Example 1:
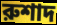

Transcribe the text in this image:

রুশাদ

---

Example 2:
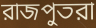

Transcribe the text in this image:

রাজপুতরা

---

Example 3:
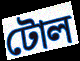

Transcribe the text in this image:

টোল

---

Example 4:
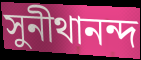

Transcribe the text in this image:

সুনীথানন্দ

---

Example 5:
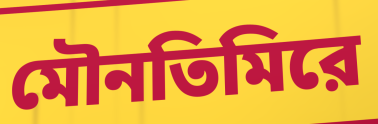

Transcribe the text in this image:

মৌনতিমিরে